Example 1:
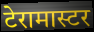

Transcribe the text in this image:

टेरामास्टर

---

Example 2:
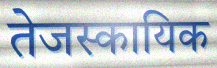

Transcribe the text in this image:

तेजस्कायिक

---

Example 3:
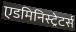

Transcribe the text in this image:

एडमिनिस्ट्रेटर्स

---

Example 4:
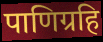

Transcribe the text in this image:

पाणिग्रहि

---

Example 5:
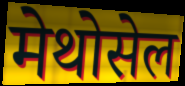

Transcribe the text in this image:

मेथोसेल